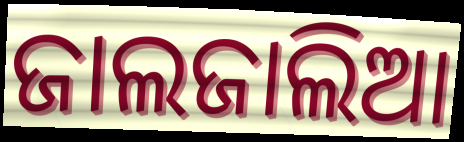
ଜାଲଜାଲିଆ